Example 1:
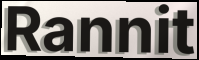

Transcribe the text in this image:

Rannit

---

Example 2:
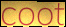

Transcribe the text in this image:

coot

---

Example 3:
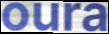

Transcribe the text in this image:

oura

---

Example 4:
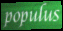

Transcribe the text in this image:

populus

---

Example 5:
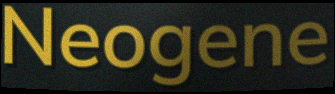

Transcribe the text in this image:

Neogene